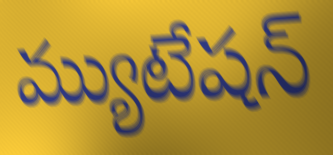
మ్యుటేషన్